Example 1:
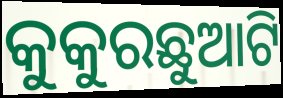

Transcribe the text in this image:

କୁକୁରଛୁଆଟି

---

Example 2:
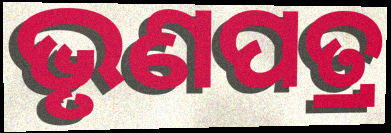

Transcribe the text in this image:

ଭୃଣପତ୍ର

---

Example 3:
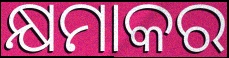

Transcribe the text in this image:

କ୍ଷମାକର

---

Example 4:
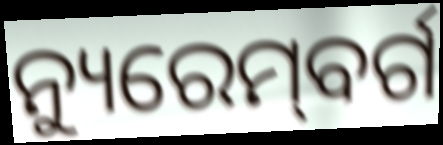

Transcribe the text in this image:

ନ୍ୟୁରେମ୍‌ବର୍ଗ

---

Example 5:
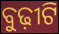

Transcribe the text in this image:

ବୁଢ଼ୀଟି